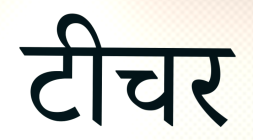
टीचर